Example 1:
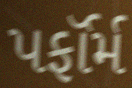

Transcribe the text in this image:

પર્ફૉર્મ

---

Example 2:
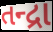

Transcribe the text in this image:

તન્દ્રા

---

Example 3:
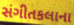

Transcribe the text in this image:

સંગીતકલાના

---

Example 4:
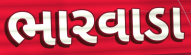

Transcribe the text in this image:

ભારવાડા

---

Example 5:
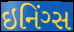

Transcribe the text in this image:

ઇનિંગ્સ